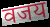
वजय